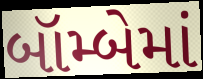
બૉમ્બેમાં